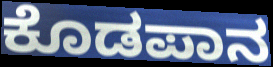
ಕೊಡಪಾನ